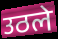
उठले